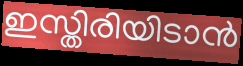
ഇസ്തിരിയിടാൻ